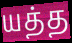
யத்த